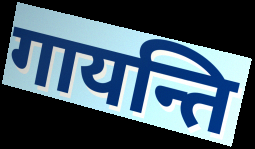
गायन्ति